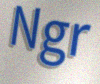
Ngr